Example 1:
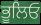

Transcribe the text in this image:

ਭੂਲਿਓ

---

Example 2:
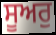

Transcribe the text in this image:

ਸੂਅਰੁ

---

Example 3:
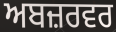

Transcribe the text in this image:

ਅਬਜ਼ਰਵਰ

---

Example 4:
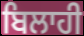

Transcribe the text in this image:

ਬਿਲਾਹੀ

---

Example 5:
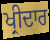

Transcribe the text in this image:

ਖ੍ਰੀਦਾਰ